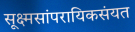
सूक्ष्मसांपरायिकसंयत